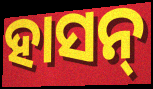
ହାସନ୍